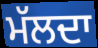
ਮੱਲਦਾ